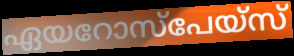
ഏയറോസ്പേയ്സ്